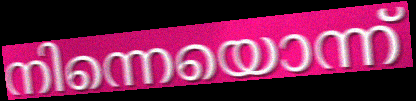
നിന്നെയൊന്ന്